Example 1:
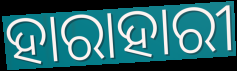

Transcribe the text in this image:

ହାରାହାରୀ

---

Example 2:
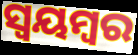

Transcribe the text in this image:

ସ୍ଵୟମ୍ବର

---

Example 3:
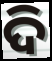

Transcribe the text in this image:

ଦି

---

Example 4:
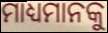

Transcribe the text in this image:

ମାଧ୍ୟମାନକୁ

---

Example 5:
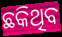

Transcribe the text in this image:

ଛକିଥିବ